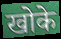
खोके